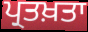
ਪ੍ਰਤਖ਼ਤਾ